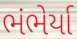
ભંભેર્યા